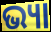
ଭ୍ୟା